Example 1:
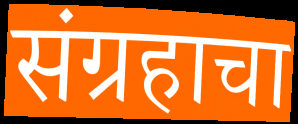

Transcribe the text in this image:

संग्रहाचा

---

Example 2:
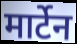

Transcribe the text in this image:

मार्टेन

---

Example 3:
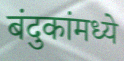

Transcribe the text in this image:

बंदुकांमध्ये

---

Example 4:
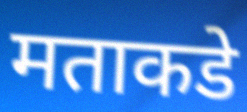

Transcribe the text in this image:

मताकडे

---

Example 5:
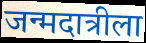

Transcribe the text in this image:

जन्मदात्रीला